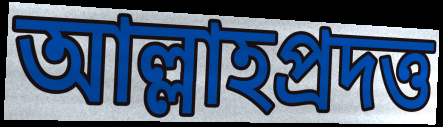
আল্লাহপ্রদত্ত